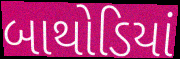
બાથોડિયાં